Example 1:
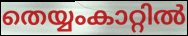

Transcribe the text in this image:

തെയ്യംകാറ്റിൽ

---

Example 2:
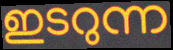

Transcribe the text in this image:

ഇടറുന്ന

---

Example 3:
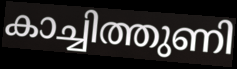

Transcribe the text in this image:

കാച്ചിത്തുണി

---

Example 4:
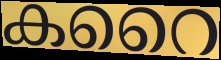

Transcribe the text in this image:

കറൈ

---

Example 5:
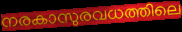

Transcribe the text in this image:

നരകാസുരവധത്തിലെ